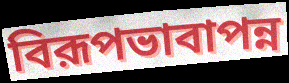
বিরূপভাবাপন্ন